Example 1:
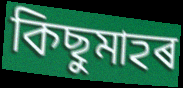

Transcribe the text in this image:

কিছুমাহৰ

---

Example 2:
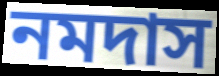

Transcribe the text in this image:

নমদাস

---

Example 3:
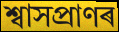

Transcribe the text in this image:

শ্বাসপ্ৰাণৰ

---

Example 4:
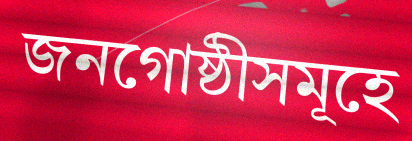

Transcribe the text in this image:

জনগোষ্ঠীসমূহে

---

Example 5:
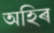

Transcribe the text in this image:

অহিৰ